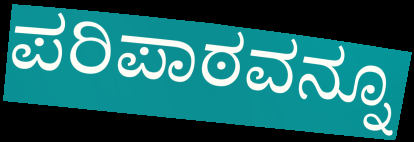
ಪರಿಪಾಠವನ್ನೂ